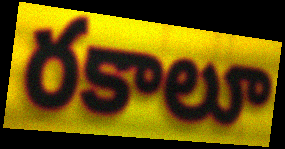
రకాలూ